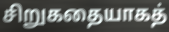
சிறுகதையாகத்